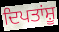
ਦਿਪਤਾਂਸ਼ੂ